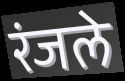
रंजले